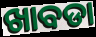
ଖାବଡା